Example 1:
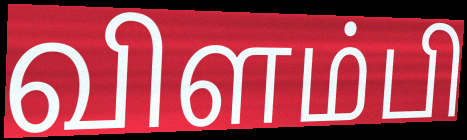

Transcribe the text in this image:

விளம்பி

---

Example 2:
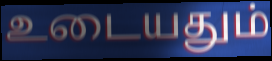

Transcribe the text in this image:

உடையதும்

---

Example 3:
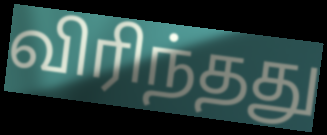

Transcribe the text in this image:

விரிந்தது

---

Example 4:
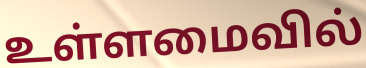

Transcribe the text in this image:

உள்ளமைவில்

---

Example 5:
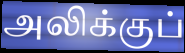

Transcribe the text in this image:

அலிக்குப்